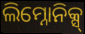
ଲିମ୍ନୋନିକ୍ସ୍